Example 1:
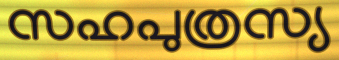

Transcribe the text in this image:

സഹപുത്രസ്യ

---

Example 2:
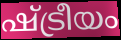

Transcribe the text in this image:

ഷ്ട്രീയം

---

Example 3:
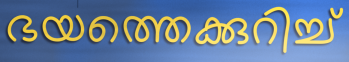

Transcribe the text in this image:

ഭയത്തെക്കുറിച്ച്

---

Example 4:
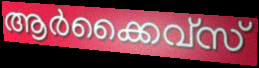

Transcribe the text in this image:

ആർക്കൈവ്സ്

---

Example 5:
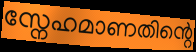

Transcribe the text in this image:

സ്നേഹമാണതിന്റെ